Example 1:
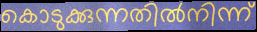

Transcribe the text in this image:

കൊടുക്കുന്നതിൽനിന്ന്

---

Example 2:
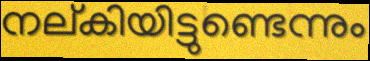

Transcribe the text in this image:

നല്കിയിട്ടുണ്ടെന്നും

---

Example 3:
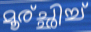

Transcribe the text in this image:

മൂര്ച്ഛിച്ച്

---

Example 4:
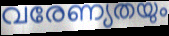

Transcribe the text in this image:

വരേണ്യതയും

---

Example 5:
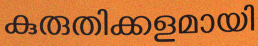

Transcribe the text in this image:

കുരുതിക്കളമായി